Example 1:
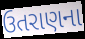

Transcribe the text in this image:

ઉતરાણના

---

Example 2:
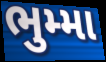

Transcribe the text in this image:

ભુમ્મા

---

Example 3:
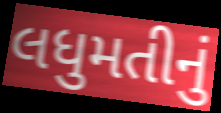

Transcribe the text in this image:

લધુમતીનું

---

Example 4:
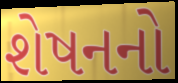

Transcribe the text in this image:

શેષનનો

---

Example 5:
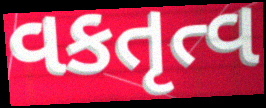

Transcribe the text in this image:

વકતૃત્વ